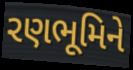
રણભૂમિને